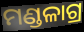
ମଣ୍ଡଳାଗ୍ର